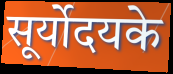
सूर्योदयके